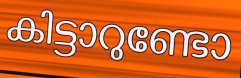
കിട്ടാറുണ്ടോ